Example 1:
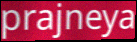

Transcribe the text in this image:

prajneya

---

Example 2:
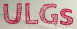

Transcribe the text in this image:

ULGs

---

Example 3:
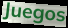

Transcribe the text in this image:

Juegos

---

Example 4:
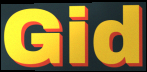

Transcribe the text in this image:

Gid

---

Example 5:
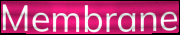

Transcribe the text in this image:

Membrane